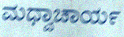
ಮಧ್ವಾಚಾರ್ಯ